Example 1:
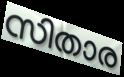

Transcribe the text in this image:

സിതാര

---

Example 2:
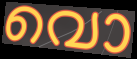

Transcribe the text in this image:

വൊ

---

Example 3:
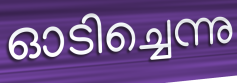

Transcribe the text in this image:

ഓടിച്ചെന്നു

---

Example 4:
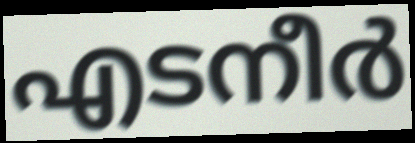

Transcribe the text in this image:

എടനീർ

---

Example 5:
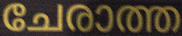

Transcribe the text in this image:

ചേരാത്ത